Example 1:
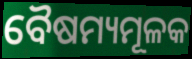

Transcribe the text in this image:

ବୈଷମ୍ୟମୂଳକ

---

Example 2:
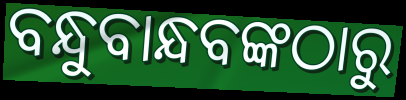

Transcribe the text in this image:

ବନ୍ଧୁବାନ୍ଧବଙ୍କଠାରୁ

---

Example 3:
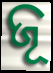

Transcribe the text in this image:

ଜୂ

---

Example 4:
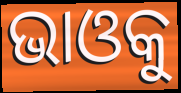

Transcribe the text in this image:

ଭାଓକୁ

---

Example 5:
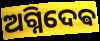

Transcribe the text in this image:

ଅଗ୍ନିଦେଵ